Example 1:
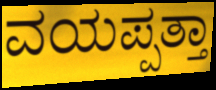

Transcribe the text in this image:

ವಯಪ್ಪತ್ತಾ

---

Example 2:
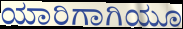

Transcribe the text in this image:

ಯಾರಿಗಾಗಿಯೂ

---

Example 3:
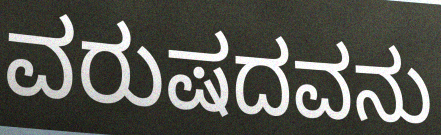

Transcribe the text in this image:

ವರುಷದವನು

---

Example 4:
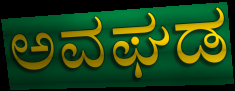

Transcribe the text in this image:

ಅವಘಡ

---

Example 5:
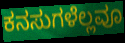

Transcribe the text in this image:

ಕನಸುಗಳೆಲ್ಲವೂ